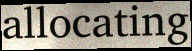
allocating